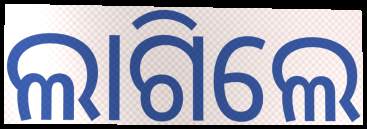
ଲାଗିଲେ